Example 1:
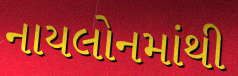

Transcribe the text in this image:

નાયલોનમાંથી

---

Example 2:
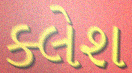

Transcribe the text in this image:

ક્લેશ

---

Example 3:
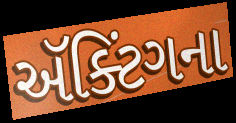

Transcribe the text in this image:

ઍક્ટિંગના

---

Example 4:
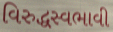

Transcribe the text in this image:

વિરુદ્ધસ્વભાવી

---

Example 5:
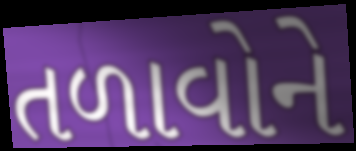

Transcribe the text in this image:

તળાવોને